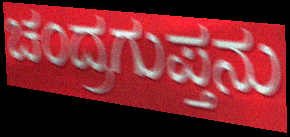
ಚಂದ್ರಗುಪ್ತನು